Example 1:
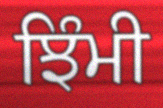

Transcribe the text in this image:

ਝਿੰਮੀ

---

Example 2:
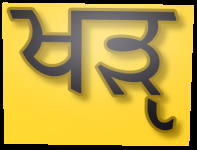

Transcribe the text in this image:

ਖੜੵ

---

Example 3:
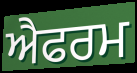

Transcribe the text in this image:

ਐਫਰਮ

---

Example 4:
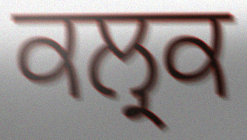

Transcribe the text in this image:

ਕਲ੍ਰਕ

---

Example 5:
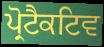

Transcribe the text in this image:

ਪ੍ਰੋਟੈਕਟਿਵ